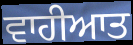
ਵਾਹੀਆਤ